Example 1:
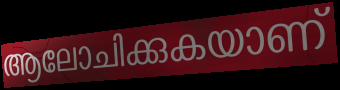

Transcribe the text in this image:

ആലോചിക്കുകയാണ്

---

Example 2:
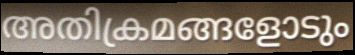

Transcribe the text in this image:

അതിക്രമങ്ങളോടും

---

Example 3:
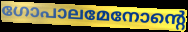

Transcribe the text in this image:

ഗോപാലമേനോന്റെ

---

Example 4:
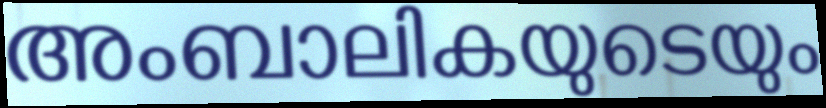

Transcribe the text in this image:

അംബാലികയുടെയും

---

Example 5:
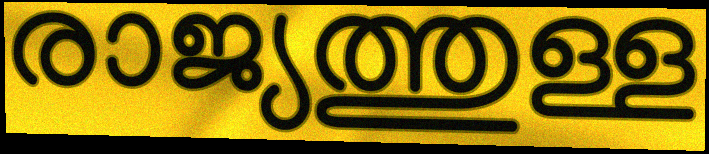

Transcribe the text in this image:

രാജ്യത്തുള്ള